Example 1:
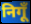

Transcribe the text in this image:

निगूँ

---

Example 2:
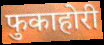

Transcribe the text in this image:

फुकाहोरी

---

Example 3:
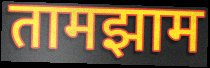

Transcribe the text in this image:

तामझाम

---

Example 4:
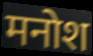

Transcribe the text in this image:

मनोश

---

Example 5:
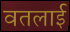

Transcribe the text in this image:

वतलाई